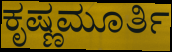
ಕೃಷ್ಣಮೂರ್ತಿ